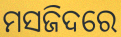
ମସଜିଦରେ